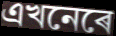
এখনেৰে